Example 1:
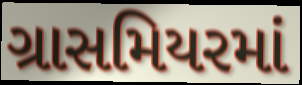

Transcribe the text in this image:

ગ્રાસમિયરમાં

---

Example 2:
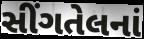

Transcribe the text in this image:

સીંગતેલનાં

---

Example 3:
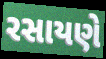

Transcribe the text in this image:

રસાયણે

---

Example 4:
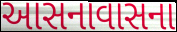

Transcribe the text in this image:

આસનાવાસના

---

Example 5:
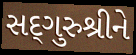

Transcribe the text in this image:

સદ્‌ગુરુશ્રીને